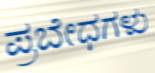
ಪ್ರಬೇಧಗಳು